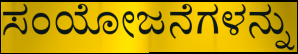
ಸಂಯೋಜನೆಗಳನ್ನು